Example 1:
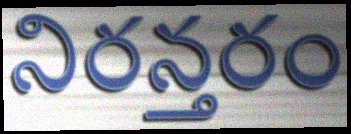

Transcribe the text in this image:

నిరన్తరం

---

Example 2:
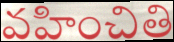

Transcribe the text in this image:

వహించితి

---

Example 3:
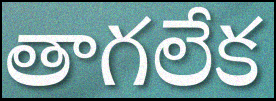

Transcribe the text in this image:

తాగలేక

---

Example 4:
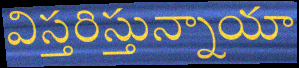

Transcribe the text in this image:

విస్తరిస్తున్నాయా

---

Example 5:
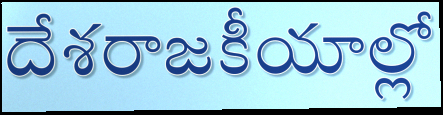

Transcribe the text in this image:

దేశరాజకీయాల్లో